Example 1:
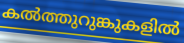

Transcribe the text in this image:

കൽത്തുറുങ്കുകളിൽ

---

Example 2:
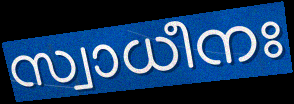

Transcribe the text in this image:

സ്വാധീനഃ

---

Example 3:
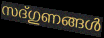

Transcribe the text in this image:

സദ്ഗുണങ്ങൾ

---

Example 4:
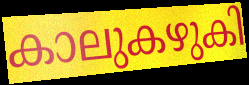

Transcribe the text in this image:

കാലുകഴുകി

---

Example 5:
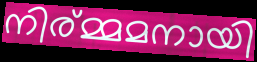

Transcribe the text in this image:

നിര്മ്മമനായി